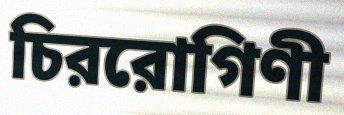
চিররোগিণী